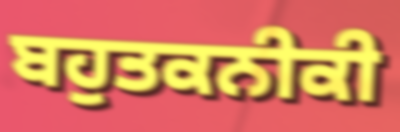
ਬਹੁਤਕਨੀਕੀ